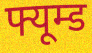
फ्यूम्ड